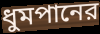
ধুমপানের